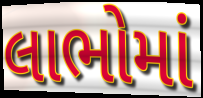
લાભોમાં